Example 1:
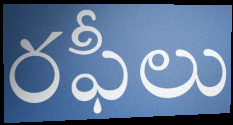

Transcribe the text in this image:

రఫీలు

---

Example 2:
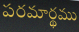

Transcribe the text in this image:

పరమార్థము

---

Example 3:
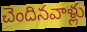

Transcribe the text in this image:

చెందినవాళ్లు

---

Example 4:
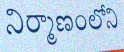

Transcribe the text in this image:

నిర్మాణంలోని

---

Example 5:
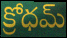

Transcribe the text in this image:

క్రోధమ్